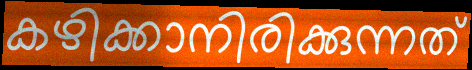
കഴിക്കാനിരിക്കുന്നത്